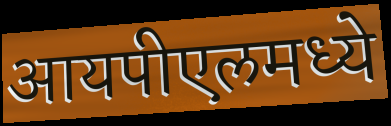
आयपीएलमध्ये